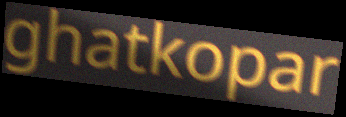
ghatkopar